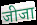
जीजा